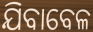
ଯିବାବେଳ